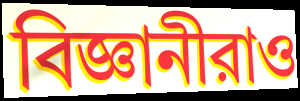
বিজ্ঞানীরাও